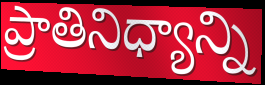
ప్రాతినిధ్యాన్ని